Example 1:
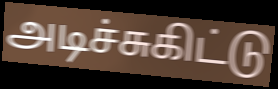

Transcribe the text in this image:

அடிச்சுகிட்டு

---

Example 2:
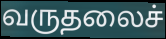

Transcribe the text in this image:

வருதலைச்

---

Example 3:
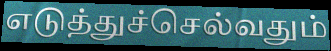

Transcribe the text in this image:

எடுத்துச்செல்வதும்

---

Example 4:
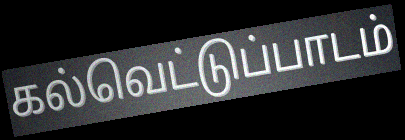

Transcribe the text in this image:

கல்வெட்டுப்பாடம்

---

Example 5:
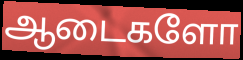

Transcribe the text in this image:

ஆடைகளோ